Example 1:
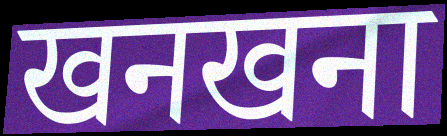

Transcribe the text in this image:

खनखना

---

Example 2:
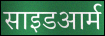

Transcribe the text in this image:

साइडआर्म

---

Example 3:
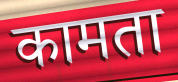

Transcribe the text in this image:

कामता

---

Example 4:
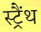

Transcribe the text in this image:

स्ट्रैंथ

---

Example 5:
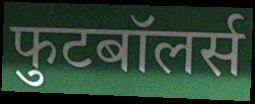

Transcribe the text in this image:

फुटबॉलर्स